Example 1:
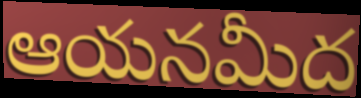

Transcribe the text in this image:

ఆయనమీద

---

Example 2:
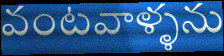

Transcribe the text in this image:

వంటవాళ్ళను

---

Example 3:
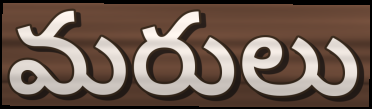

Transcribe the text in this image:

మరులు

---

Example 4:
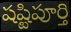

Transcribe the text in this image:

షష్టిపూర్తి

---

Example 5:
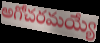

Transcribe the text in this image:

అగోచరమయ్యే